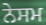
ਨੇਸਮ